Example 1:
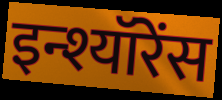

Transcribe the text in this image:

इन्श्यॉरेंस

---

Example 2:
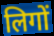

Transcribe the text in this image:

लिगों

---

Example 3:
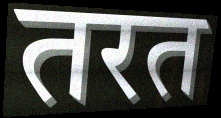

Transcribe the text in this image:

तरत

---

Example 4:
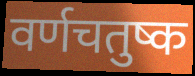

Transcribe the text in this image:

वर्णचतुष्क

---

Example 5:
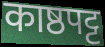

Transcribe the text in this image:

काष्ठपट्ट